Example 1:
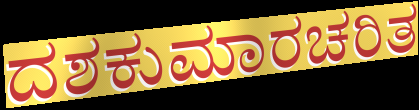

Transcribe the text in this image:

ದಶಕುಮಾರಚರಿತ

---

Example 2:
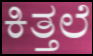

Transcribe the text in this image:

ಕಿತ್ತಲೆ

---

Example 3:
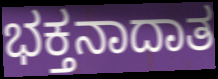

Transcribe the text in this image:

ಭಕ್ತನಾದಾತ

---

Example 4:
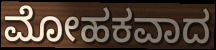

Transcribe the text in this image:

ಮೋಹಕವಾದ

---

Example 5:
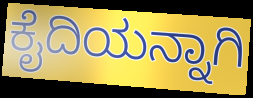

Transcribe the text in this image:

ಕೈದಿಯನ್ನಾಗಿ